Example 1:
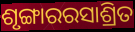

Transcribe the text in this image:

ଶୃଙ୍ଗାରରସାଶ୍ରିତ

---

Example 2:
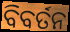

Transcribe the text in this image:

ବିବର୍ତନ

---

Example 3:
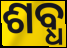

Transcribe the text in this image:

ଶବ୍ଧ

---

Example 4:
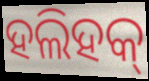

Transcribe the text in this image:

ହଲିହକ୍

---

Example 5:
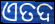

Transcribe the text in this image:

ଏତଦ